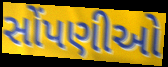
સોંપણીઓ